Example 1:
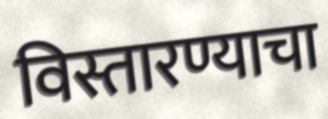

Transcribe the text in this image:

विस्तारण्याचा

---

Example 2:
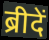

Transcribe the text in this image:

ब्रीदें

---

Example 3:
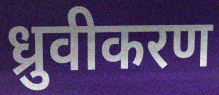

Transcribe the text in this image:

ध्रुवीकरण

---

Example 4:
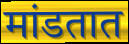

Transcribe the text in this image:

मांडतात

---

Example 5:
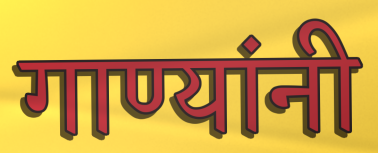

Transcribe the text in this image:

गाण्यांनी